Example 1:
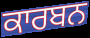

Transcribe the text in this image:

ਕਾਰਬਨ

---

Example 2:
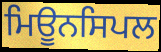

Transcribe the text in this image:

ਮਿਊਨਸਿਪਲ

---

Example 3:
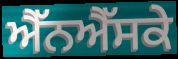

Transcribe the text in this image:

ਐੱਨਐੱਸਕੇ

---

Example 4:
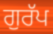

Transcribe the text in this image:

ਗੁਰੱਪ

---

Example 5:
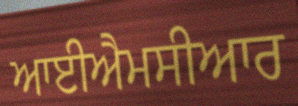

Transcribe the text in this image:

ਆਈਐਮਸੀਆਰ